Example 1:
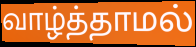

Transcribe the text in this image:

வாழ்த்தாமல்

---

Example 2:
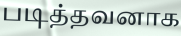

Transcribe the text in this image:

படித்தவனாக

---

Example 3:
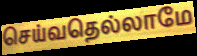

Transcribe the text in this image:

செய்வதெல்லாமே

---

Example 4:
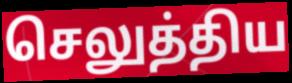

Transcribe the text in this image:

செலுத்திய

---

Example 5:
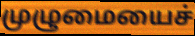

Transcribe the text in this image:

முழுமையைச்